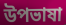
উপভাষা